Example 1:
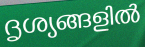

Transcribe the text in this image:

ദൃശ്യങ്ങളിൽ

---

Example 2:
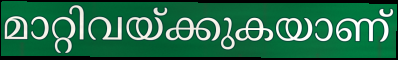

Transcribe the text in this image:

മാറ്റിവയ്ക്കുകയാണ്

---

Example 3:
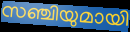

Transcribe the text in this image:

സഞ്ചിയുമായി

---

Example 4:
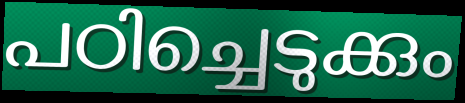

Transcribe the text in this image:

പഠിച്ചെടുക്കും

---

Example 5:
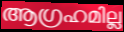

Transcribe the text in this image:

ആഗ്രഹമില്ല